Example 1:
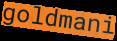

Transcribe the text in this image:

goldmani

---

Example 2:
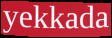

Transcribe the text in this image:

yekkada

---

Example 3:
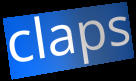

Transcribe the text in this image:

claps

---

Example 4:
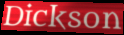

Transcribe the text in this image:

Dickson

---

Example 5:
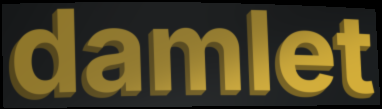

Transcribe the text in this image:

damlet